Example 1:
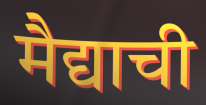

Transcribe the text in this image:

मैद्याची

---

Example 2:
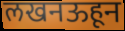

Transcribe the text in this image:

लखनऊहून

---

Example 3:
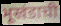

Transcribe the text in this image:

भूखंडाची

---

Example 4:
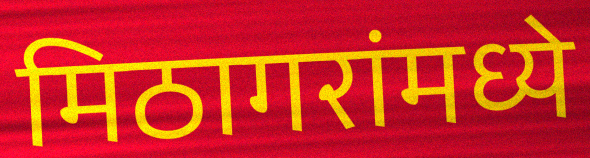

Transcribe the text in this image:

मिठागरांमध्ये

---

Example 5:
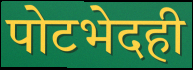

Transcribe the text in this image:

पोटभेदही